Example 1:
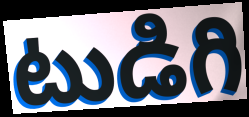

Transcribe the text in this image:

టుడిగి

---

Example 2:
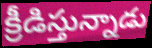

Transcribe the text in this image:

క్రీడిస్తున్నాడు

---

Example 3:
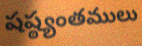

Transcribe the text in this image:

షష్ఠ్యంతములు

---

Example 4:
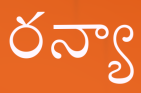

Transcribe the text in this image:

రన్యా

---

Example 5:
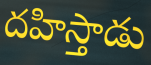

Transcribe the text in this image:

దహిస్తాడు